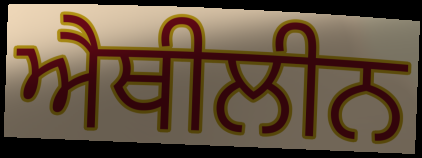
ਐਥੀਲੀਨ